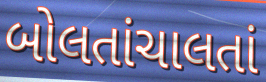
બોલતાંચાલતાં